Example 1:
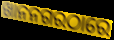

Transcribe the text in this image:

ଖାନନଗରଠାରେ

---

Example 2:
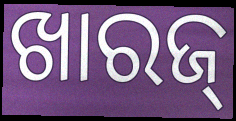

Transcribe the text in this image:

ଖାରଜ୍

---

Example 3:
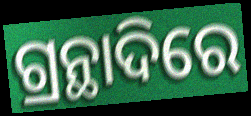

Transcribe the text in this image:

ଗ୍ରନ୍ଥାଦିରେ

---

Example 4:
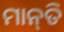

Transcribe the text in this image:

ମାନ୍‌ତି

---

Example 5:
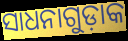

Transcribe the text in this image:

ସାଧନାଗୁଡ଼ାକ